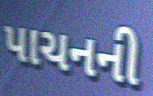
પાચનની